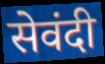
सेवंदी